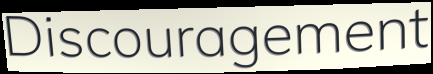
Discouragement